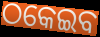
ଠକେଇବ